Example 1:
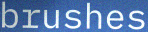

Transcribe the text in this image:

brushes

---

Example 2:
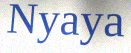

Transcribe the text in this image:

Nyaya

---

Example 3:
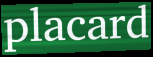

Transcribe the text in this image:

placard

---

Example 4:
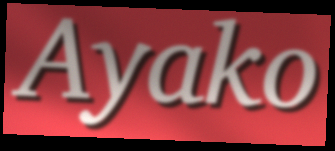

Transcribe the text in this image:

Ayako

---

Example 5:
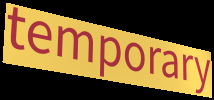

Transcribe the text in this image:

temporary